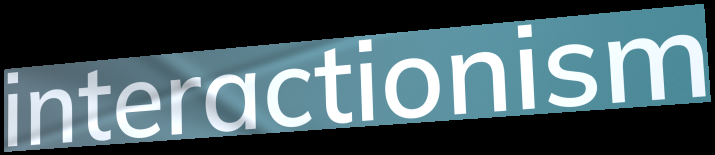
interactionism